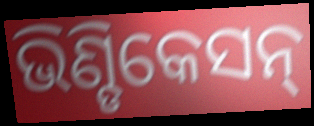
ଭିଣ୍ଡିକେସନ୍